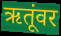
ऋतूंवर